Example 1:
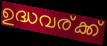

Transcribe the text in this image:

ഉദ്ധവര്ക്ക്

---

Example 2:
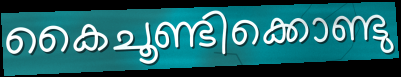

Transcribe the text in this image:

കൈചൂണ്ടിക്കൊണ്ടു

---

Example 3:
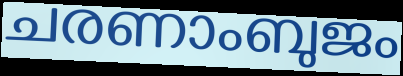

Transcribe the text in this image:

ചരണാംബുജം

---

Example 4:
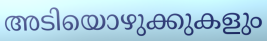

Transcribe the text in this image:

അടിയൊഴുക്കുകളും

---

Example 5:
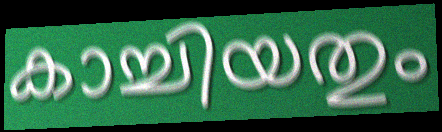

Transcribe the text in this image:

കാച്ചിയതും